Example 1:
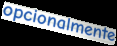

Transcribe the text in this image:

opcionalmente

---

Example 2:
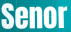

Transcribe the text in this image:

Senor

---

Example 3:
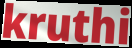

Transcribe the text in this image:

kruthi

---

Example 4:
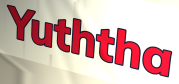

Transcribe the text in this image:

Yuththa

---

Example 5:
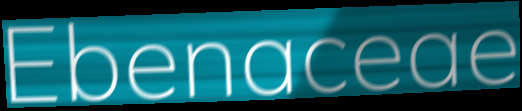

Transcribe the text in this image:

Ebenaceae